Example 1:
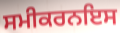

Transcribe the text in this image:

ਸਮੀਕਰਨਇਸ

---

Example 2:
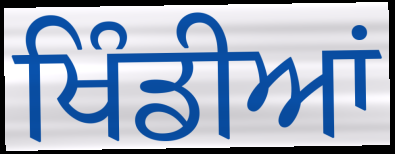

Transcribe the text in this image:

ਖਿੰਡੀਆਂ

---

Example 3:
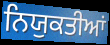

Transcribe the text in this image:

ਨਿਯੁਕਤੀਆਂ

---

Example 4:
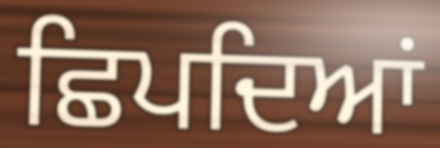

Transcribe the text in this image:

ਛਿਪਦਿਆਂ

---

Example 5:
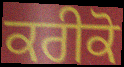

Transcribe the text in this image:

ਕਰੀਕੋ